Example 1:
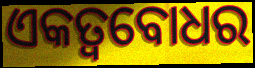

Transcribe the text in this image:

ଏକତ୍ୱବୋଧର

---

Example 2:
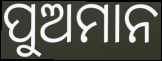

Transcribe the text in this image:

ପୁଅମାନ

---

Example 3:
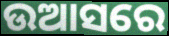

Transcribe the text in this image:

ଉଆସରେ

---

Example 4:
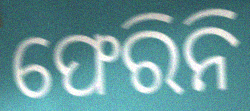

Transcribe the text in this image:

ଫେରିନି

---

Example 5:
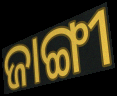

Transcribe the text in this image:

ଜାଙ୍ଗୀ